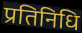
प्रतिनिधि